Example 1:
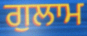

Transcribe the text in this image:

ਗੁਲਾਮ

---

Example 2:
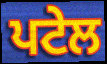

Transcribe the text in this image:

ਪਟੇਲ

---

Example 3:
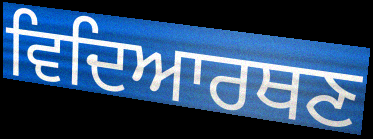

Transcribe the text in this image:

ਵਿਦਿਆਰਥਣ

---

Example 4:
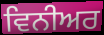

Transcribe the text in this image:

ਵਿਨੀਅਰ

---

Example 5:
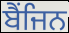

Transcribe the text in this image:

ਬੈਂਜਿਨ